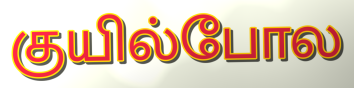
குயில்போல